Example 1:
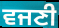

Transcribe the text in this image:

ਵਜਣੀ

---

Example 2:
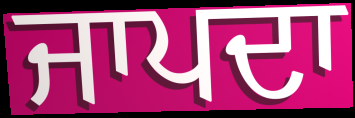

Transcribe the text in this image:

ਜਾਪਦਾ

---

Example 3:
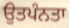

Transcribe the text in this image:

ਉਤਪੰਨਤਾ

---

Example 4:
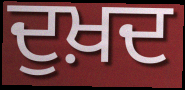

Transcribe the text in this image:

ਦੁਖ਼ਦ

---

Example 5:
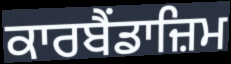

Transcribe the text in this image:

ਕਾਰਬੈਂਡਾਜ਼ਿਮ